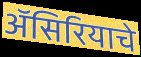
ॲसिरियाचे